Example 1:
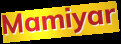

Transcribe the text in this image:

Mamiyar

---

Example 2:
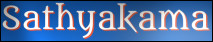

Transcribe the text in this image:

Sathyakama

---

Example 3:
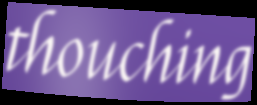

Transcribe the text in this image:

thouching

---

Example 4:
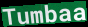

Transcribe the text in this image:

Tumbaa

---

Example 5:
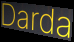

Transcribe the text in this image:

Darda